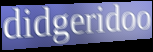
didgeridoo